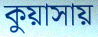
কুয়াসায়